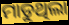
ମାଡୁଥିଲା